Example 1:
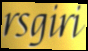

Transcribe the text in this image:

rsgiri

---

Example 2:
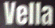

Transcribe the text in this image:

Vella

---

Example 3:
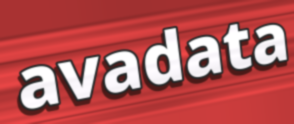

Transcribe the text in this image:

avadata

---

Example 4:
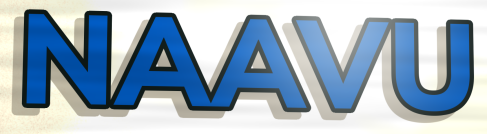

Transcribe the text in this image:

NAAVU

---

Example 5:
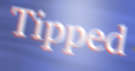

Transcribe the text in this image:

Tipped